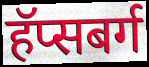
हॅप्सबर्ग